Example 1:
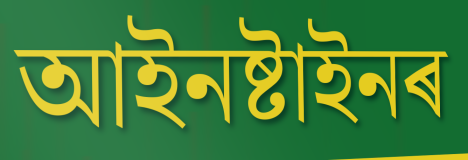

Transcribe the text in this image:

আইনষ্টাইনৰ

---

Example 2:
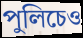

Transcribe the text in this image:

পুলিচেও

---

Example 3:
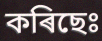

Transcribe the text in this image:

কৰিছেঃ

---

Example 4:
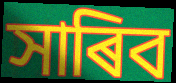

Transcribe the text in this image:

সাৰিব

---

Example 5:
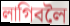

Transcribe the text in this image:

লাগিবলৈ